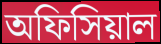
অফিসিয়াল